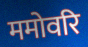
ममोवरि